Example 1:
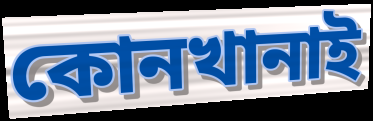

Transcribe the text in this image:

কোনখানাই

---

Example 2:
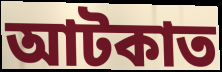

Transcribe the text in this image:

আটকাত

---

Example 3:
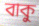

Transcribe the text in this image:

বাকু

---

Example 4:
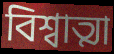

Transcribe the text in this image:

বিশ্বাত্মা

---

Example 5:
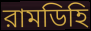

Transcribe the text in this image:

রামডিহি